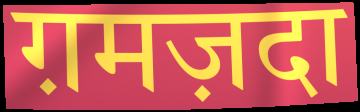
ग़मज़दा